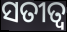
ସତୀତ୍ବ